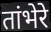
तांभेरे